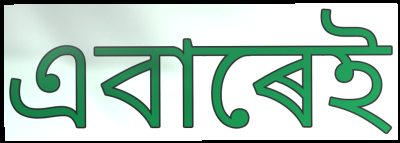
এবাৰেই